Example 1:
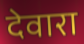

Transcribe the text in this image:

देवारा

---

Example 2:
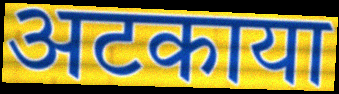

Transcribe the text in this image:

अटकाया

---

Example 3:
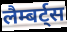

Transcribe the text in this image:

लैम्बर्ट्स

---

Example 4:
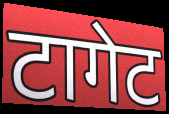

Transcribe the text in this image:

टागेट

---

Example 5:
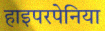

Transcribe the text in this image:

हाइपरपेनिया